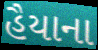
હૈયાના